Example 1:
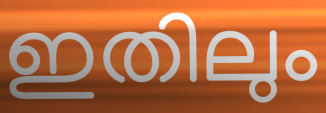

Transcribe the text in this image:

ഇതിലും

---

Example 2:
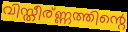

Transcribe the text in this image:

വിസ്തീര്ണ്ണത്തിന്റെ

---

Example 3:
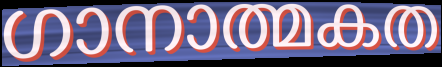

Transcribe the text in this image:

ഗാനാത്മകത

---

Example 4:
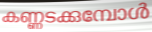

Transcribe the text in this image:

കണ്ണടക്കുമ്പോൾ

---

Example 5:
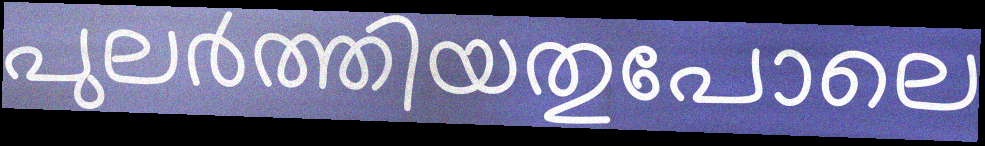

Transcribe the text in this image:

പുലർത്തിയതുപോലെ